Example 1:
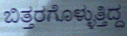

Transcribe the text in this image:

ಬಿತ್ತರಗೊಳ್ಳುತ್ತಿದ್ದ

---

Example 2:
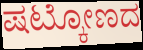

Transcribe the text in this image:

ಷಟ್ಕೋಣದ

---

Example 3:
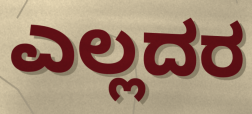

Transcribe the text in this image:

ಎಲ್ಲದರ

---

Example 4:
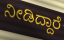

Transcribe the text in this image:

ನೀಡಿದ್ದಾರೆ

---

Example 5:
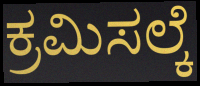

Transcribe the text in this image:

ಕ್ರಮಿಸಲ್ಕೆ